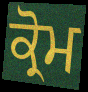
ਕ੍ਰੋਮ